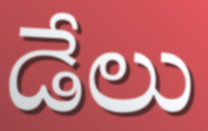
డేలు